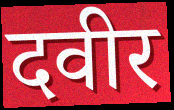
दवीर